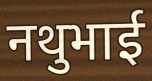
नथुभाई